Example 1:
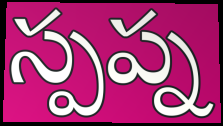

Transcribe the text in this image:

స్పప్న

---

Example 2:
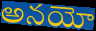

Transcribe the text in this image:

అనయో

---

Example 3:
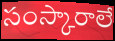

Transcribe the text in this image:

సంస్కారాలే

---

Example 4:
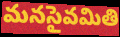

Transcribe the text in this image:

మనసైవమితి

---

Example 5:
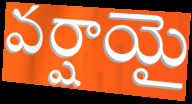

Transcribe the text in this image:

వర్షాయై